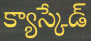
క్యాస్కేడ్